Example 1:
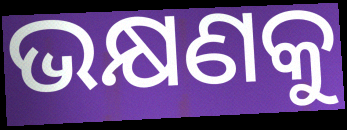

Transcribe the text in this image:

ଭକ୍ଷଣକୁ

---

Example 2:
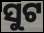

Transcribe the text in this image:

ସୁଟ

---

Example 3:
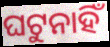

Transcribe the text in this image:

ଘଟୁନାହିଁ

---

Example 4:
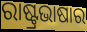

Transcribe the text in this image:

ରାଷ୍ଟ୍ରଭାଷାର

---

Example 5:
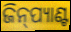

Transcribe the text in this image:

ଜିନ୍‍ପ୍ୟାଣ୍ଟ